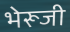
भेरूजी